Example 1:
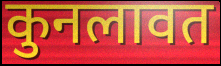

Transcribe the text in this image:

कुनलावत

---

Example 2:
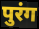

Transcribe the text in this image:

पुरंग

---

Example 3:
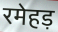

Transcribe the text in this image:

रमेहड़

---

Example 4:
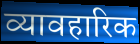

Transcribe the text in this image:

व्यावहारिक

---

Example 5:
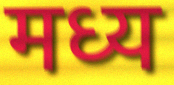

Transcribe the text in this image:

मध्य